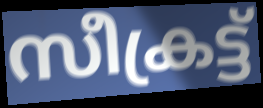
സീക്രട്ട്